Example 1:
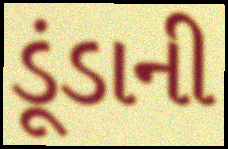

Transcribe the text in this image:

ડૂંડાની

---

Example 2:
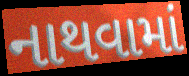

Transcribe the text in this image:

નાથવામાં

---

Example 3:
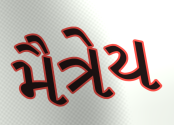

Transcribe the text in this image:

મૈત્રેય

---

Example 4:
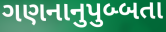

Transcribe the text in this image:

ગણનાનુપુબ્બતા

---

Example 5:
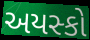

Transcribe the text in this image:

અયસ્કો